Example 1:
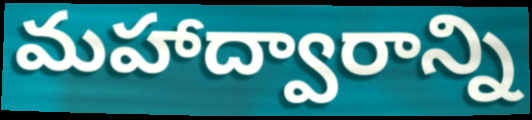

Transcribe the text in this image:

మహాద్వారాన్ని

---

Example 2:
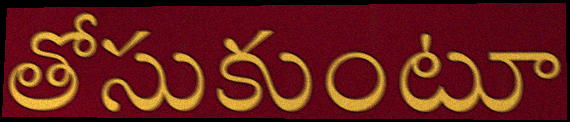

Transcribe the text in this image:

తోసుకుంటూ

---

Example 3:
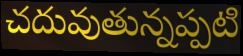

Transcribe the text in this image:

చదువుతున్నప్పటి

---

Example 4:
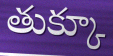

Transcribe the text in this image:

తుక్కూ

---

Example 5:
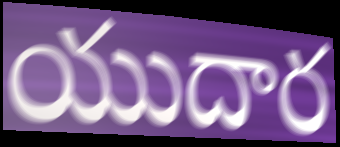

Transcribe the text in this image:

యుదార